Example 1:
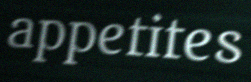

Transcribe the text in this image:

appetites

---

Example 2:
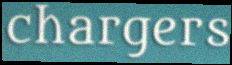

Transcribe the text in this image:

chargers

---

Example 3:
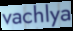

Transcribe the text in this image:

vachlya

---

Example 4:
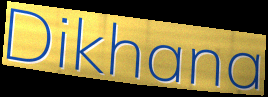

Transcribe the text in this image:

Dikhana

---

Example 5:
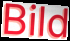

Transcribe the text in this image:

Bild